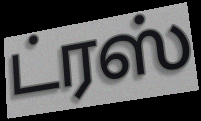
ட்ரஸ்